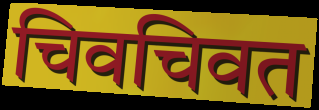
चिवचिवत